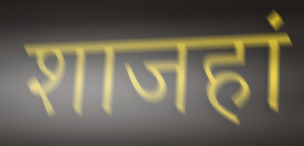
शाजहां